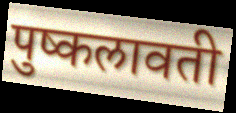
पुष्कलावती